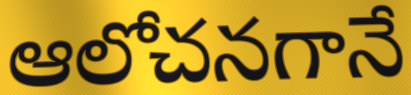
ఆలోచనగానే